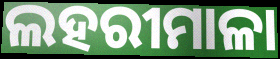
ଲହରୀମାଳା